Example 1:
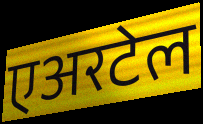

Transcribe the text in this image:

एअरटेल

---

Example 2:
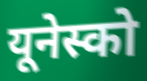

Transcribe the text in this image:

यूनेस्को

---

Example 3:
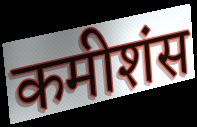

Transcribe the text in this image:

कमीशंस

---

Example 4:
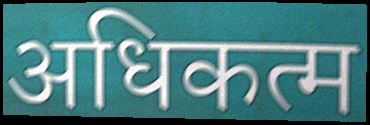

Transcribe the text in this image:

अधिकत्म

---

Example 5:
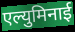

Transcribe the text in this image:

एल्युमिनाई